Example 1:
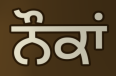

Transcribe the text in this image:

ਨੌਕਾਂ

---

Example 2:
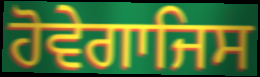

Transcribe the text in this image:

ਹੋਵੇਗਾਜਿਸ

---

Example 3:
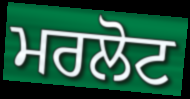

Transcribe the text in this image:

ਮਰਲੋਟ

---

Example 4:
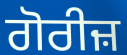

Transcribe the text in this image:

ਗੋਰੀਜ਼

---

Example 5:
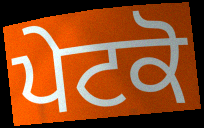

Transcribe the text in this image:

ਪੇਟਕੋ